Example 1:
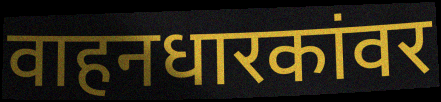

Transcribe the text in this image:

वाहनधारकांवर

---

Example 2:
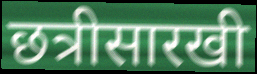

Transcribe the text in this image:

छत्रीसारखी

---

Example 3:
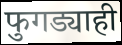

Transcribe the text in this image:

फुगड्याही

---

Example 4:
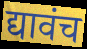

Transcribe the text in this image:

द्यावंच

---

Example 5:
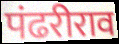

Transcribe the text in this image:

पंढरीराव